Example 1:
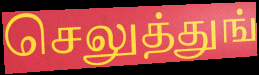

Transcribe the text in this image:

செலுத்துங்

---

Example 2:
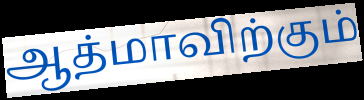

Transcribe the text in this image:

ஆத்மாவிற்கும்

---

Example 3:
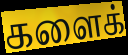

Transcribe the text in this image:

களைக்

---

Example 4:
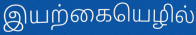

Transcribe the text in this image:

இயற்கையெழில்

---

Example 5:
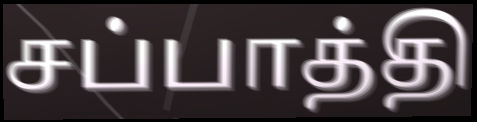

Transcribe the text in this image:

சப்பாத்தி